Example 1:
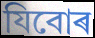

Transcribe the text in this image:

যিবোৰ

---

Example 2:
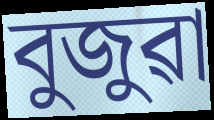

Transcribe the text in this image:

বুজুৱা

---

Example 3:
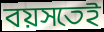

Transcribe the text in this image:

বয়সতেই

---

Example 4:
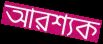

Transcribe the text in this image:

আৱশ্যক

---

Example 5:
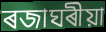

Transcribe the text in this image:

ৰজাঘৰীয়া